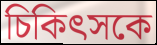
চিকিৎসকে